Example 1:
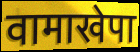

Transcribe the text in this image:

वामाखेपा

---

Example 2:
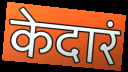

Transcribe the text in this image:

केदारं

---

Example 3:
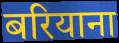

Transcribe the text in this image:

बरियाना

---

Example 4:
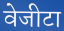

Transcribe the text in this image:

वेजीटा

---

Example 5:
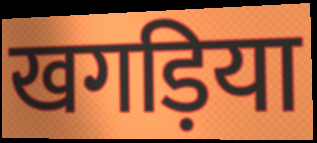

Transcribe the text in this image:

खगड़िया